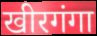
खीरगंगा